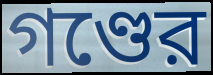
গণ্ডের